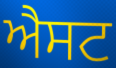
ਐਸਟ